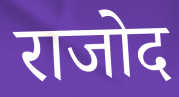
राजोद